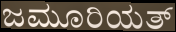
ಜಮೂರಿಯತ್